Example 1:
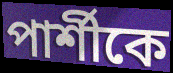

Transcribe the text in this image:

পার্শীকে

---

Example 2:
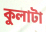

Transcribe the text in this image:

কুলাটা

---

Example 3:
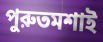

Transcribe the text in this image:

পুরুতমশাই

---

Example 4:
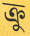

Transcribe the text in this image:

ক্রু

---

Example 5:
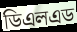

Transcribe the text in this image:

ডিএলএড